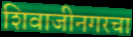
शिवाजीनगरचा